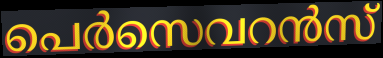
പെർസെവറൻസ്